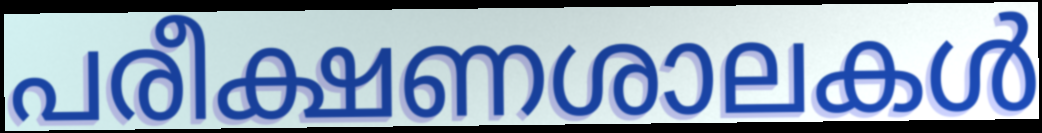
പരീക്ഷണശാലകൾ